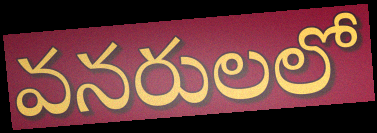
వనరులలో